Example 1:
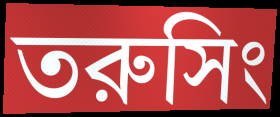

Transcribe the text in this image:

তরুসিং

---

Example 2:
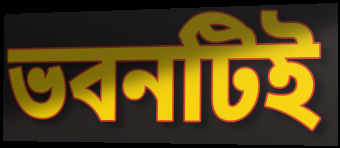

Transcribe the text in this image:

ভবনটিই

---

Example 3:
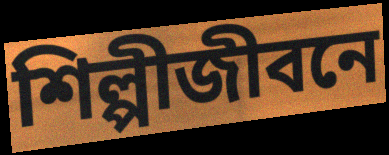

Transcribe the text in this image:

শিল্পীজীবনে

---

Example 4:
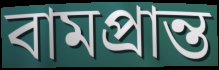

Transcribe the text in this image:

বামপ্রান্ত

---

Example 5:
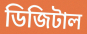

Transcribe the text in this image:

ডিজিটাল